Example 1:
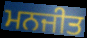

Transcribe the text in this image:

ਮਨਜੀਤ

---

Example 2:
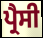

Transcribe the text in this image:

ਪ੍ਰੈਸੀ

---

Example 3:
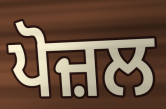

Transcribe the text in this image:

ਪੋਜ਼ਲ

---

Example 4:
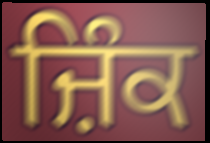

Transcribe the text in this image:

ਜ਼ਿੰਕ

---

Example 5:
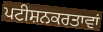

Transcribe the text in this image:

ਪਟੀਸ਼ਨਕਰਤਾਵਾਂ